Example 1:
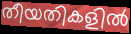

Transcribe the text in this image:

തീയതികളിൽ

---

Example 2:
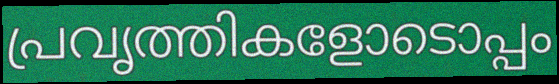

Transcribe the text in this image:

പ്രവൃത്തികളോടൊപ്പം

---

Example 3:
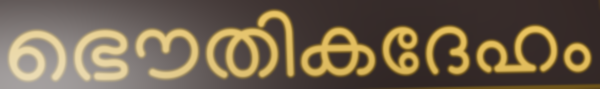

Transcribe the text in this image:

ഭൌതികദേഹം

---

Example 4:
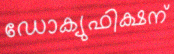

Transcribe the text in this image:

ഡോക്യുഫിക്ഷന്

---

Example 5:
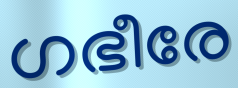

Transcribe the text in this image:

ഗഭീരേ